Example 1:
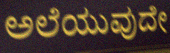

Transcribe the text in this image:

ಅಲೆಯುವುದೇ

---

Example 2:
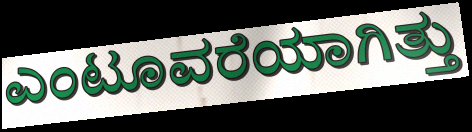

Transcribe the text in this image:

ಎಂಟೂವರೆಯಾಗಿತ್ತು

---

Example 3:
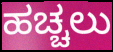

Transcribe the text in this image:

ಹಚ್ಚಲು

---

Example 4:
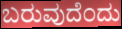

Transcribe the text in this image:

ಬರುವುದೆಂದು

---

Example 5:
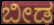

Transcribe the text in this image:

ಬೀಡ